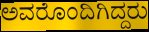
ಅವರೊಂದಿಗಿದ್ದರು